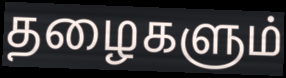
தழைகளும்